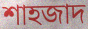
শাহজাদ